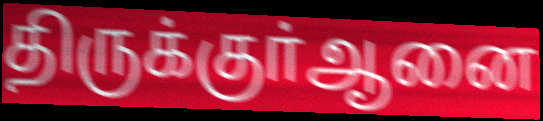
திருக்குர்ஆனை